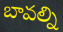
బావల్ని